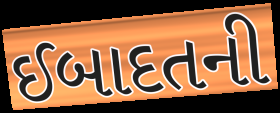
ઈબાદતની